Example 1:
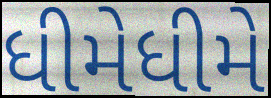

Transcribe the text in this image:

ધીમેધીમે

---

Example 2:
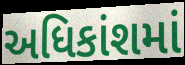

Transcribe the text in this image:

અધિકાંશમાં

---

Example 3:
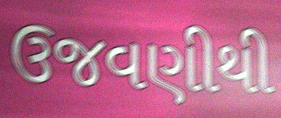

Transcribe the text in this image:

ઉજવણીથી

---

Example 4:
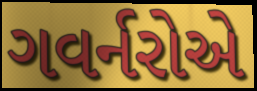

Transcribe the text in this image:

ગવર્નરોએ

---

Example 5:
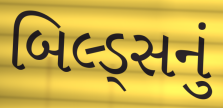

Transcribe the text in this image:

બિલ્ડ્સનું